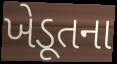
ખેડૂતના